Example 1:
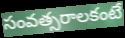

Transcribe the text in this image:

సంవత్సరాలకంటే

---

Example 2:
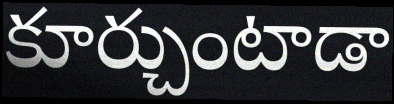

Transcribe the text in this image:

కూర్చుంటాడా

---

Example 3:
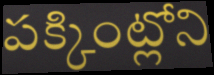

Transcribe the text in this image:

పక్కింట్లోని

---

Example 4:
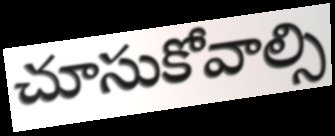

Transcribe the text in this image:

చూసుకోవాల్సి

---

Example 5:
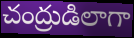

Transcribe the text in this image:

చంద్రుడిలాగా